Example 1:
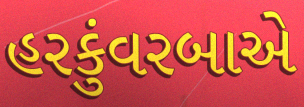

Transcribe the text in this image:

હરકુંવરબાએ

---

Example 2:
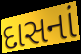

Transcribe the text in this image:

દાસનાં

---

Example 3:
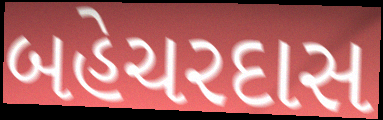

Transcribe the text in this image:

બહેચરદાસ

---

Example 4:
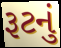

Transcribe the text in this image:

રૂટનું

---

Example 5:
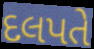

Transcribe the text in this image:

દલપતે